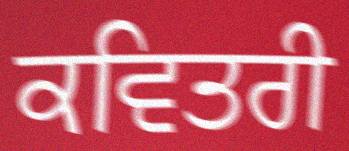
ਕਵਿਤਰੀ